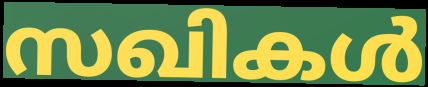
സഖികൾ